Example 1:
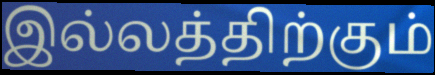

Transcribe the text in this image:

இல்லத்திற்கும்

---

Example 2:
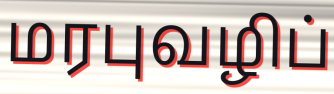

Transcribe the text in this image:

மரபுவழிப்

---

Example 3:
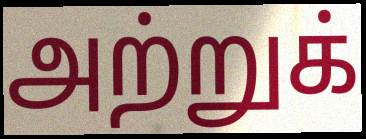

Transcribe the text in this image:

அற்றுக்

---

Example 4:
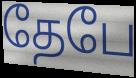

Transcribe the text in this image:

தேபே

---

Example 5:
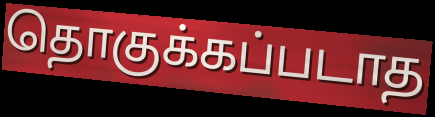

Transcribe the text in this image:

தொகுக்கப்படாத